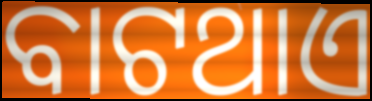
ବାଟଥାଏ